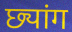
छ्यांग